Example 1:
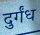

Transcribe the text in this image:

दुर्गंध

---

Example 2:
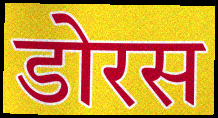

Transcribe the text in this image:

डोरस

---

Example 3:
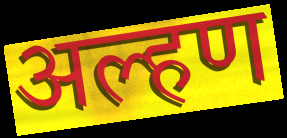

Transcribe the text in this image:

अल्हण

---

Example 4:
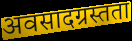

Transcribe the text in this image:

अवसादग्रस्तता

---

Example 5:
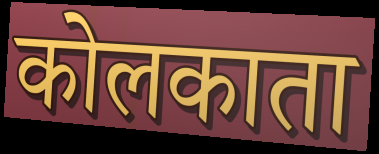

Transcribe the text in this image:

कोलकाता